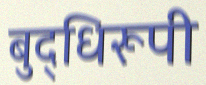
बुद्धिरूपी